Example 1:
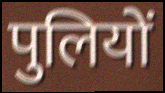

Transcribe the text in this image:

पुलियों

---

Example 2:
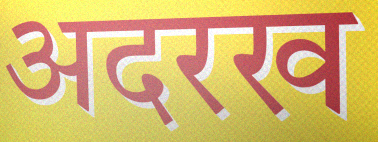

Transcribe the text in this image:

अदरख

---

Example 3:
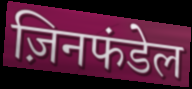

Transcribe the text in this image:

ज़िनफंडेल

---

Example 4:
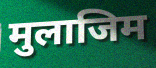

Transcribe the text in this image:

मुलाजिम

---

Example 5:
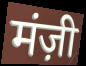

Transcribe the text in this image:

मंज़ी